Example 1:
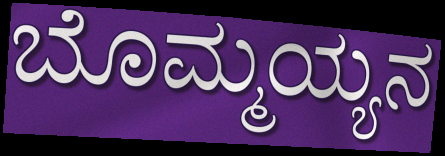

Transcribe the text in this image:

ಬೊಮ್ಮಯ್ಯನ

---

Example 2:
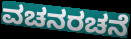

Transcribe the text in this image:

ವಚನರಚನೆ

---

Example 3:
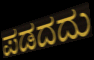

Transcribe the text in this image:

ಪಡದದು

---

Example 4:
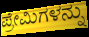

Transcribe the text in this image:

ಪ್ರೇಮಿಗಳನ್ನು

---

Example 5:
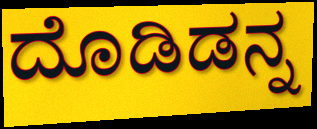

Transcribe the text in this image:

ದೊಡಿಡನ್ನ